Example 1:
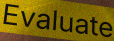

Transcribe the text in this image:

Evaluate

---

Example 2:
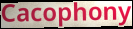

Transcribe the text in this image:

Cacophony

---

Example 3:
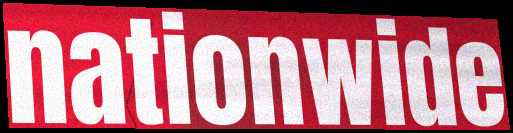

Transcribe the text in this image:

nationwide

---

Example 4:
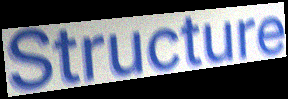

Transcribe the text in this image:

Structure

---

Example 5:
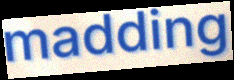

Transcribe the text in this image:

madding